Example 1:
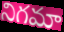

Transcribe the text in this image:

నిగమా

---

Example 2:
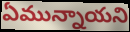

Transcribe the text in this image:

ఏమున్నాయని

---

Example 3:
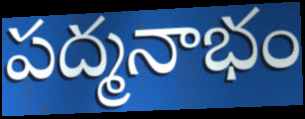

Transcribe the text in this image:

పద్మనాభం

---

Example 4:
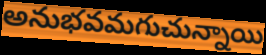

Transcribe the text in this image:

అనుభవమగుచున్నాయి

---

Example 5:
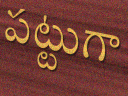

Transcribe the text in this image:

పట్టుగా